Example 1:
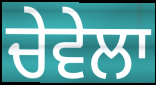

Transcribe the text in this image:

ਚੇਵੇਲਾ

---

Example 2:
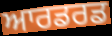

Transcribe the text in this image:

ਆਰਡਰਡ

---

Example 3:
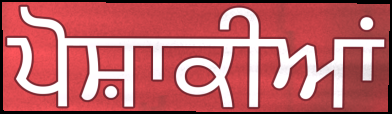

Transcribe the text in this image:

ਪੋਸ਼ਾਕੀਆਂ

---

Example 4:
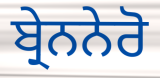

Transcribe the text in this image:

ਬ੍ਰੇਨਨੇਰੋ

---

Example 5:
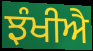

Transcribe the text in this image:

ਝੰਖੀਐ